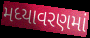
મધ્યાવરણમાં